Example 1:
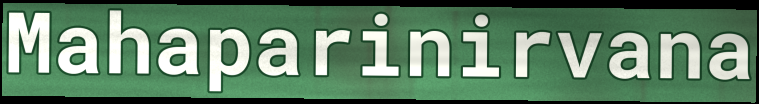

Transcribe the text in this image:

Mahaparinirvana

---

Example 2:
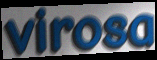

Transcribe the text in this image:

virosa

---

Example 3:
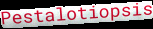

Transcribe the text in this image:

Pestalotiopsis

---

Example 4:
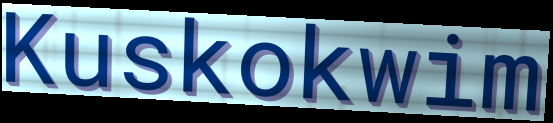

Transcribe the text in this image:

Kuskokwim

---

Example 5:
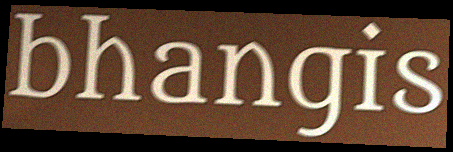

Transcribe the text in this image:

bhangis